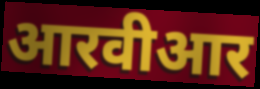
आरवीआर